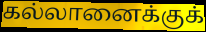
கல்லானைக்குக்